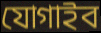
যোগাইব